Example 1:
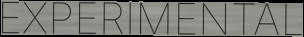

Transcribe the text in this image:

EXPERIMENTAL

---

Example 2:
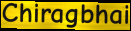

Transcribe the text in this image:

Chiragbhai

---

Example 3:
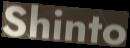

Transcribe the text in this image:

Shinto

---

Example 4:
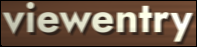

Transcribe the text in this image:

viewentry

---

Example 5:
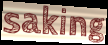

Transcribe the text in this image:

saking